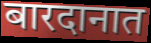
बारदानात